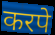
करपे